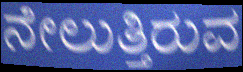
ನೇಲುತ್ತಿರುವ